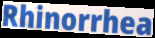
Rhinorrhea